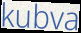
kubva